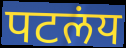
पटलंय